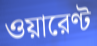
ওয়ারেণ্ট